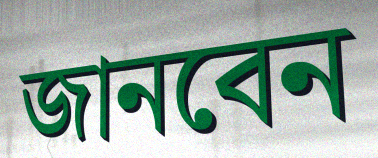
জানবেন